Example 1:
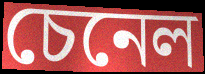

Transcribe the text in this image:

চেনেল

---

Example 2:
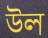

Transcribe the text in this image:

উল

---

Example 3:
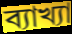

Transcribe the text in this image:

ব্যাখ্যা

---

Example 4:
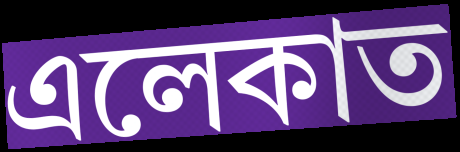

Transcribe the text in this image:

এলেকাত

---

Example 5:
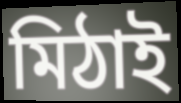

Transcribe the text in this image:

মিঠাই